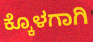
ಕ್ಕೊಳಗಾಗಿ